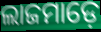
ଲାଜମାଡ଼େ